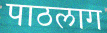
पाठलाग